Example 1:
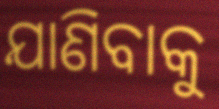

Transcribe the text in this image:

ଯାଣିବାକୁ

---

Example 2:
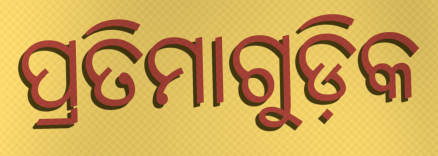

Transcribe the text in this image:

ପ୍ରତିମାଗୁଡ଼ିକ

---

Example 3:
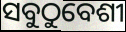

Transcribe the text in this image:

ସବୁଠୁବେଶୀ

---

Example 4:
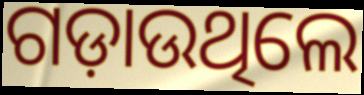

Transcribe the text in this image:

ଗଡ଼ାଉଥିଲେ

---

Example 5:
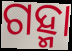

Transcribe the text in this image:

ଗହ୍ମା